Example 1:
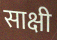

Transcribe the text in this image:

साक्षी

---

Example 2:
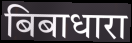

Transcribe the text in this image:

बिबाधारा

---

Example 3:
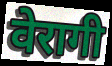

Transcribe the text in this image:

वेरागी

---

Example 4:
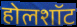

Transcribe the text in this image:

होलशॉट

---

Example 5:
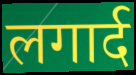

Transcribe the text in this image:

लगार्द